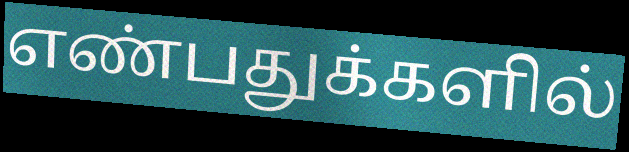
எண்பதுக்களில்